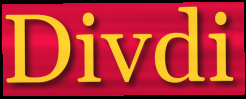
Divdi